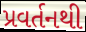
પ્રવર્તનથી